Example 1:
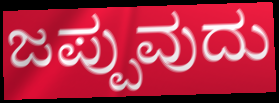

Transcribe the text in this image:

ಜಪ್ಪುವುದು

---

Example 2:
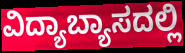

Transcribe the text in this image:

ವಿದ್ಯಾಬ್ಯಾಸದಲ್ಲಿ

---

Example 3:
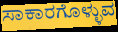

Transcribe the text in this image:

ಸಾಕಾರಗೊಳ್ಳುವ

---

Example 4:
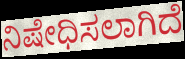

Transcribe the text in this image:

ನಿಷೇಧಿಸಲಾಗಿದೆ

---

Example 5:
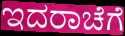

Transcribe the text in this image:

ಇದರಾಚೆಗೆ